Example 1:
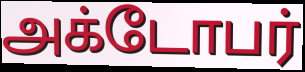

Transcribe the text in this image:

அக்டோபர்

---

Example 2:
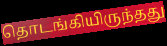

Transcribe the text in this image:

தொடங்கியிருந்தது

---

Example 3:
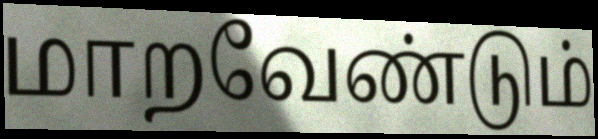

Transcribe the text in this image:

மாறவேண்டும்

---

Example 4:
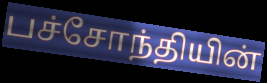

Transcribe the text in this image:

பச்சோந்தியின்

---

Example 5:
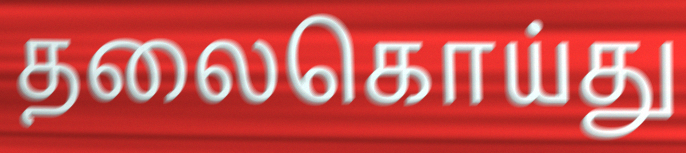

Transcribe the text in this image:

தலைகொய்து